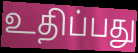
உதிப்பது